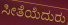
ಸೀತೆಯೆದುರು